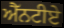
ਐੱਨਟੀਏ